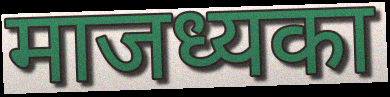
माजध्यका